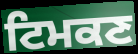
ਟਿਮਕਣ